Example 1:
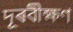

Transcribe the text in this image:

দূৰবীক্ষণ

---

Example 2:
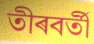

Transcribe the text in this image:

তীৰবৰ্তী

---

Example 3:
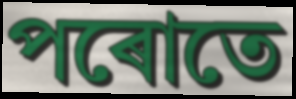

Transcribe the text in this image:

পৰোতে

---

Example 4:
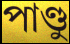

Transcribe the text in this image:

পাণ্ডু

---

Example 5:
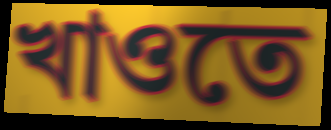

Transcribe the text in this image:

খাওতে